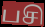
பசி